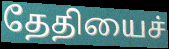
தேதியைச்